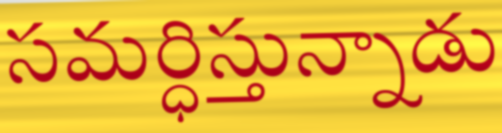
సమర్ధిస్తున్నాడు